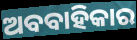
ଅବବାହିକାର